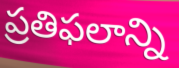
ప్రతిఫలాన్ని